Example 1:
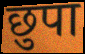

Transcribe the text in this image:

छुपा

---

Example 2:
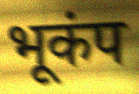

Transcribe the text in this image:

भूकंप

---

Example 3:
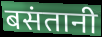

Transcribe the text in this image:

बसंतानी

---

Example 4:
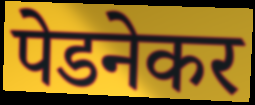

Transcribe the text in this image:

पेडनेकर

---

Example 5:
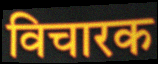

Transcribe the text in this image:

विचारक